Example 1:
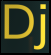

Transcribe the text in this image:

Dj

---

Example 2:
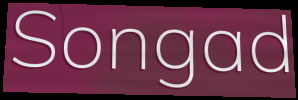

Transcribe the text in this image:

Songad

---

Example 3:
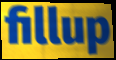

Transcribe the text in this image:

fillup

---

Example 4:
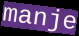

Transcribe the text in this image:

manje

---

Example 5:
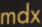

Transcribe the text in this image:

mdx